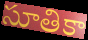
సూతికా